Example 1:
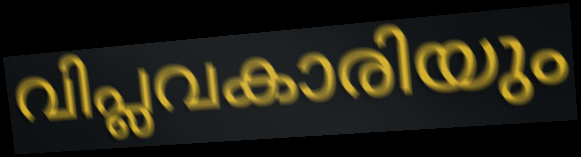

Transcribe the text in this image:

വിപ്ലവകാരിയും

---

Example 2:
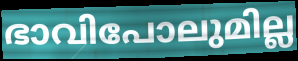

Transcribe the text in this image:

ഭാവിപോലുമില്ല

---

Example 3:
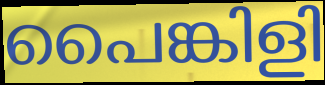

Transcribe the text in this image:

പൈങ്കിളി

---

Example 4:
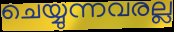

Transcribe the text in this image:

ചെയ്യുന്നവരല്ല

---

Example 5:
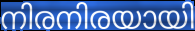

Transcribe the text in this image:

നിരനിരയായി